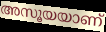
അസൂയയാണ്